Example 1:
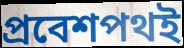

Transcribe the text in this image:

প্রবেশপথই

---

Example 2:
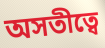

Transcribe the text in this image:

অসতীত্বে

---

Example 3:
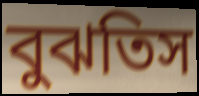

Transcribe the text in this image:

বুঝতিস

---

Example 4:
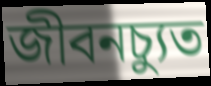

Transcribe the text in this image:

জীবনচ্যুত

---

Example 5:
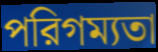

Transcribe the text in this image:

পরিগম্যতা